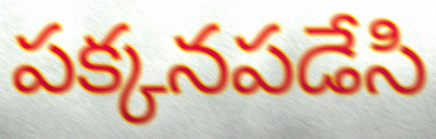
పక్కనపడేసి